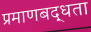
प्रमाणबद्धता